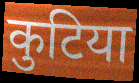
कुटिया